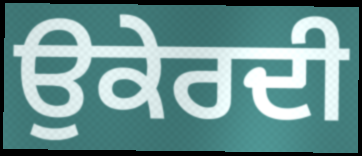
ਉਕੇਰਦੀ